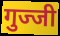
गुज्जी